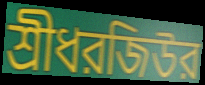
শ্রীধরজিউর